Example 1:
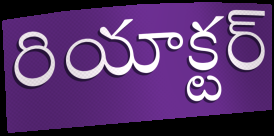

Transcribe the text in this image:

రియాక్టర్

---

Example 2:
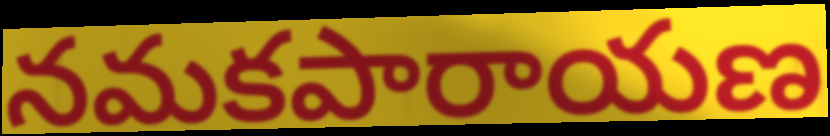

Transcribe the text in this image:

నమకపారాయణ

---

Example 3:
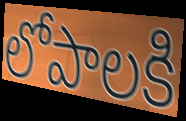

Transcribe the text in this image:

లోపాలకి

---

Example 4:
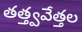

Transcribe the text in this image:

తత్త్వవేత్తల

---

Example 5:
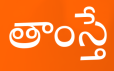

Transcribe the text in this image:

తాంస్తే